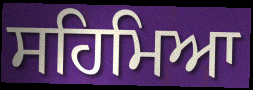
ਸਹਿਮਿਆ